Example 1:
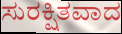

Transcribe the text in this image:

ಸುರಕ್ಷಿತವಾದ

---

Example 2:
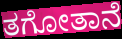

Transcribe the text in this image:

ತಗೋತಾನೆ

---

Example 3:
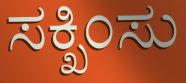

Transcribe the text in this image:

ಸಕ್ಖಿಂಸು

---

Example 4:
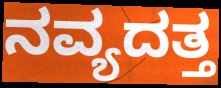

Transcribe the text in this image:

ನವ್ಯದತ್ತ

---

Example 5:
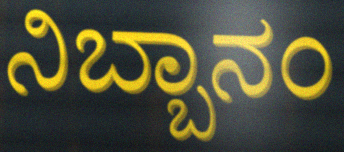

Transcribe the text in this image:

ನಿಬ್ಬಾನಂ